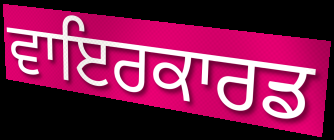
ਵਾਇਰਕਾਰਡ